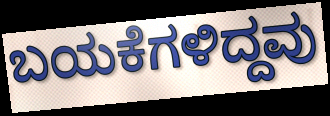
ಬಯಕೆಗಳಿದ್ದವು